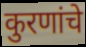
कुरणांचे